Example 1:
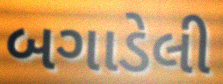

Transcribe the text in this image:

બગાડેલી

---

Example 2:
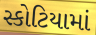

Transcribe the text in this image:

સ્કોટિયામાં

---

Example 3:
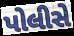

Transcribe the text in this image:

પોલીસે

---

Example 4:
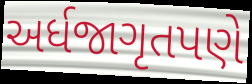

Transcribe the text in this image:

અર્ધજાગૃતપણે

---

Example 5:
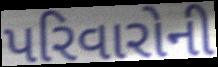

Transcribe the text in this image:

પરિવારોની